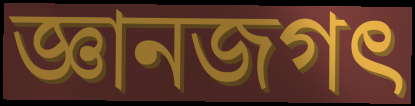
জ্ঞানজগৎ